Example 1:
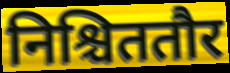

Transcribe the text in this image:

निश्चिततौर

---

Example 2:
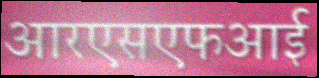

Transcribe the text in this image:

आरएसएफआई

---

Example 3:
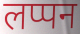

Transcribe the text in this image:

लप्पन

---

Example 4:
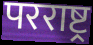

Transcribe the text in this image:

परराष्ट्र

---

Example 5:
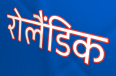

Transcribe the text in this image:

रोलैंडिक